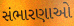
સંભારણાઓ